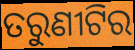
ତରୁଣୀଟିର